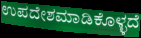
ಉಪದೇಶಮಾಡಿಕೊಳ್ಳದೆ